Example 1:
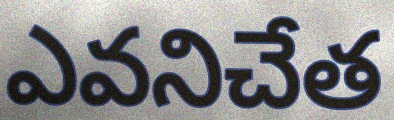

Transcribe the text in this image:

ఎవనిచేత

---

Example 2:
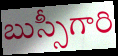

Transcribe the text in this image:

బుస్సీగారి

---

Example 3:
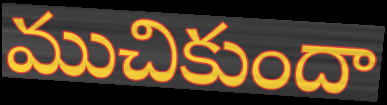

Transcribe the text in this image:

ముచికుందా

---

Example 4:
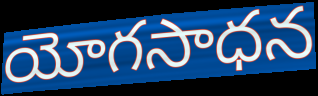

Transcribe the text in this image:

యోగసాధన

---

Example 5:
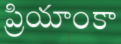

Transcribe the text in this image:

ప్రియాంకా